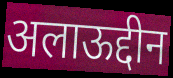
अलाऊद्दीन